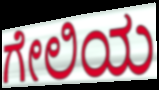
ಗೇಲಿಯ